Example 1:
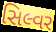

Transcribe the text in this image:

સિલ્વર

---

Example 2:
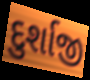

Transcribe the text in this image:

દુર્શાજી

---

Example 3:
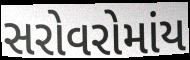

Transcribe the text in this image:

સરોવરોમાંય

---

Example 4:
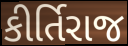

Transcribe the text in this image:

કીર્તિરાજ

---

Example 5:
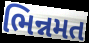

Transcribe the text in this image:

ભિન્નમત